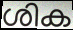
ശിക